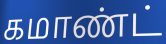
கமாண்ட்